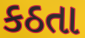
કઠતા